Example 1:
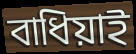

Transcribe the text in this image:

বাধিয়াই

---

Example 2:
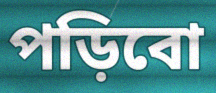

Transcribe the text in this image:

পড়িবো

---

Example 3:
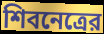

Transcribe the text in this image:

শিবনেত্রের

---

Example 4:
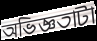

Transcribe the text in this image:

অভিজ্ঞতাটা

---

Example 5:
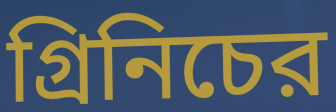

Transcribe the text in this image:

গ্রিনিচের